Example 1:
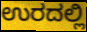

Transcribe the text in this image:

ಉರದಲ್ಲಿ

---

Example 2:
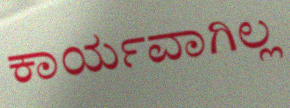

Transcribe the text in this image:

ಕಾರ್ಯವಾಗಿಲ್ಲ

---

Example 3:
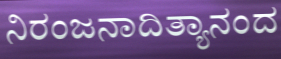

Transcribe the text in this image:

ನಿರಂಜನಾದಿತ್ಯಾನಂದ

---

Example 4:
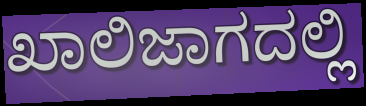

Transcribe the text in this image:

ಖಾಲಿಜಾಗದಲ್ಲಿ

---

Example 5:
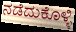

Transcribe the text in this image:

ನಡೆದುಕೊಳ್ಳಿ